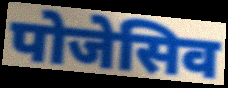
पोजेसिव